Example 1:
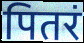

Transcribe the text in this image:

पितरं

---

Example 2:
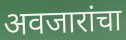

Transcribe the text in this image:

अवजारांचा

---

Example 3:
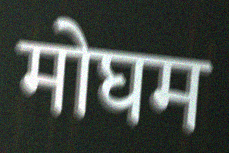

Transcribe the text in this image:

मोघम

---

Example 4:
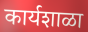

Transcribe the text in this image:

कार्यशाळा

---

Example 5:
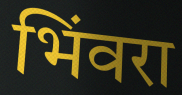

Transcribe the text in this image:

भिंवरा